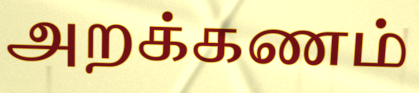
அறக்கணம்